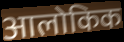
आलोकिक